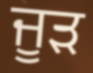
ਜੂੜ